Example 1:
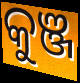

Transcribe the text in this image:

କୁଞ୍ଜ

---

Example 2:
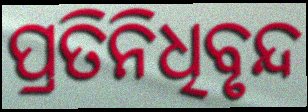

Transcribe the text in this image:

ପ୍ରତିନିଧିବୃନ୍ଦ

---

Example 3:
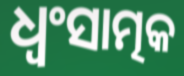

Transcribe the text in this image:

ଧ୍ଵଂସାତ୍ମକ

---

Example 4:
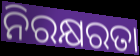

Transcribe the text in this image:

ନିରକ୍ଷରତା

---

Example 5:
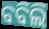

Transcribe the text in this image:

ବବିଲି